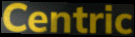
Centric